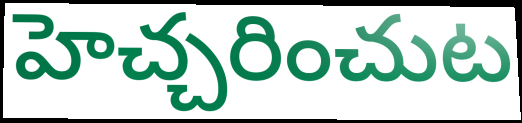
హెచ్చరించుట